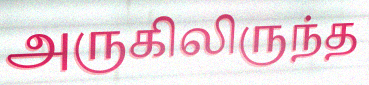
அருகிலிருந்த